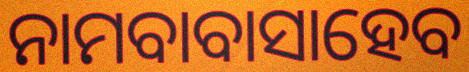
ନାମବାବାସାହେବ